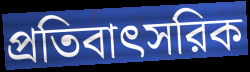
প্রতিবাৎসরিক